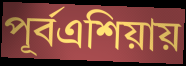
পূর্বএশিয়ায়